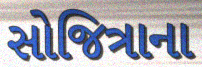
સોજિત્રાના